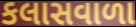
કલાસવાળા